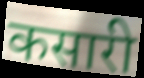
कसारी